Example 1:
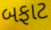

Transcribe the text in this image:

બફાટ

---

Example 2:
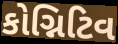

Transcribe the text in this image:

કોગ્નિટિવ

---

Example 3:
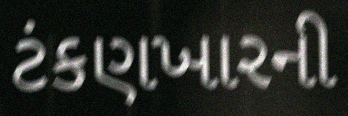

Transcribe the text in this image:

ટંકણખારની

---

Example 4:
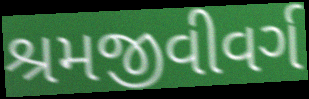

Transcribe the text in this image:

શ્રમજીવીવર્ગ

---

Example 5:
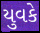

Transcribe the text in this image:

યુવકે